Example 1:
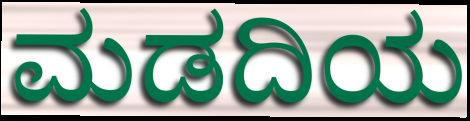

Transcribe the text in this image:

ಮಡದಿಯ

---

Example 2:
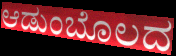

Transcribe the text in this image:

ಆಡುಂಬೊಲದ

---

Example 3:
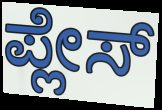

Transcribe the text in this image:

ಪ್ಲೇಸ್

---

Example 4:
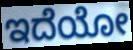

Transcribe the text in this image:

ಇದೆಯೋ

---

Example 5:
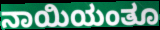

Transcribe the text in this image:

ನಾಯಿಯಂತೂ